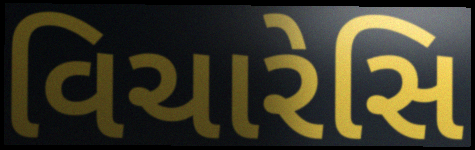
વિચારેસિ